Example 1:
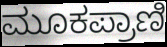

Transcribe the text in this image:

ಮೂಕಪ್ರಾಣಿ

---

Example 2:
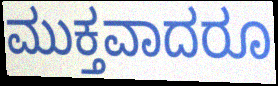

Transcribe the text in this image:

ಮುಕ್ತವಾದರೂ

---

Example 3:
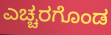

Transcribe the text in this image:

ಎಚ್ಚರಗೊಂಡ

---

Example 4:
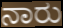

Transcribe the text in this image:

ನಾರು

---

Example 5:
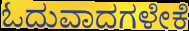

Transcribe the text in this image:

ಓದುವಾದಗಳೇಕೆ